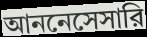
আননেসেসারি